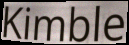
Kimble